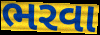
ભરવા